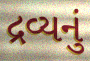
દ્રવ્યનું